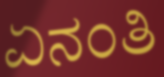
ಏನಂತಿ